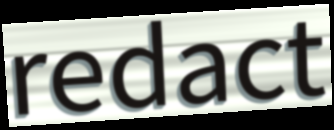
redact